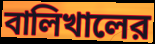
বালিখালের